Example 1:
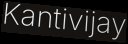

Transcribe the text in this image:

Kantivijay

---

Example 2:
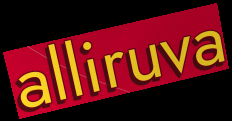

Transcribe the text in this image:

alliruva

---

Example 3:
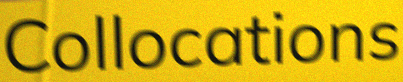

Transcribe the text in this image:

Collocations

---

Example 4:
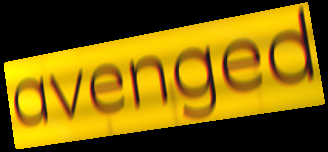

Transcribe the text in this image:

avenged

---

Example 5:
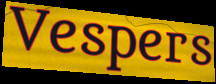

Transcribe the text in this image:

Vespers